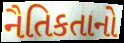
નૈતિકતાનો